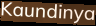
Kaundinya